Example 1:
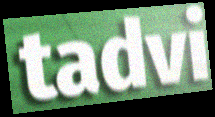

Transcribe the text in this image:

tadvi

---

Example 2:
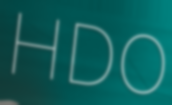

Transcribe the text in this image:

HDO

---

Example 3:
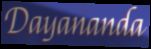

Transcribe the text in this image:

Dayananda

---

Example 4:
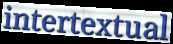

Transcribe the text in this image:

intertextual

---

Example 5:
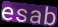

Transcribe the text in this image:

esab